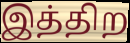
இத்திற